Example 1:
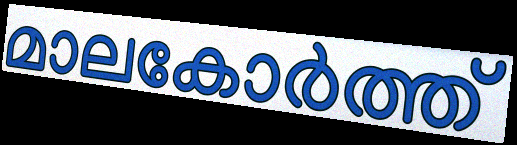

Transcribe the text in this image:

മാലകോർത്ത്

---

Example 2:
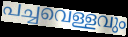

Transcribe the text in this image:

പച്ചവെള്ളവും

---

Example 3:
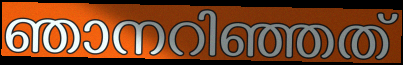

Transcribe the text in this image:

ഞാനറിഞ്ഞത്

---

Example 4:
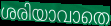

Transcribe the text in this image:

ശരിയാവാതെ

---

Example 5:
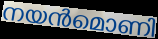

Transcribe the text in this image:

നയൻമൊണി